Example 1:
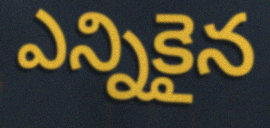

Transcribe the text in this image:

ఎన్నికైన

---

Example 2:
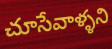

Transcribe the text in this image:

చూసేవాళ్ళని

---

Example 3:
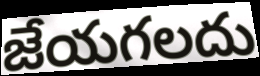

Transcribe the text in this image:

జేయగలదు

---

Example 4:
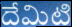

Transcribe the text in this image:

దేమిటి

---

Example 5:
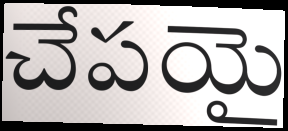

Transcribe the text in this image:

చేపయై